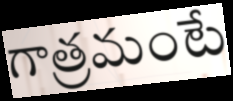
గాత్రమంటే